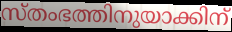
സ്തംഭത്തിനുയാക്കിന്